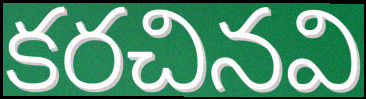
కరచినవి